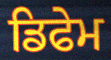
ਡਿਫੇਮ